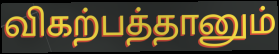
விகற்பத்தானும்